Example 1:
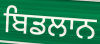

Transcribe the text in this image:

ਬਿਡਲਾਨ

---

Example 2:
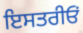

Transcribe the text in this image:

ਇਸਤਰੀਓਂ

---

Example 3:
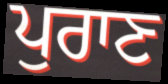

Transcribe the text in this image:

ਪੁਰਾਣ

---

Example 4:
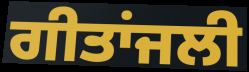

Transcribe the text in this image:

ਗੀਤਾਂਜਲੀ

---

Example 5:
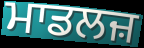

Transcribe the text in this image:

ਮਾਡਲਜ਼